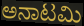
ಅನಾಟಮಿ